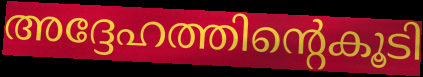
അദ്ദേഹത്തിന്റെകൂടി